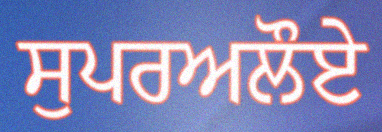
ਸੁਪਰਅਲੌਏ